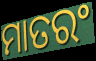
ମାତରଂ